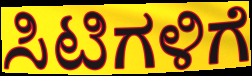
ಸಿಟಿಗಳಿಗೆ